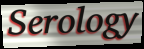
Serology